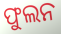
ଫୁଲନ